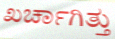
ಖರ್ಚಾಗಿತ್ತು